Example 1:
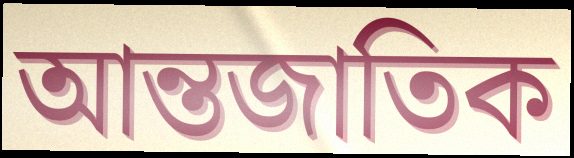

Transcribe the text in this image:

আন্তজাতিক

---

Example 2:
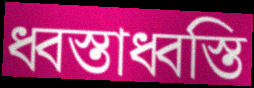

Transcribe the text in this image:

ধ্বস্তাধ্বস্তি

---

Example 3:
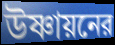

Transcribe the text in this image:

উষ্ণায়নের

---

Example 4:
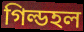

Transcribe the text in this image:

গিল্ডহল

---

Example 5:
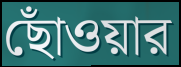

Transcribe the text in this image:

ছোঁওয়ার